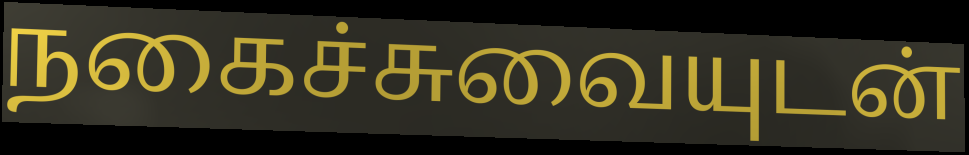
நகைச்சுவையுடன்